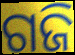
ଗଜି